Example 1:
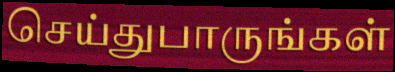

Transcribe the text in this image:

செய்துபாருங்கள்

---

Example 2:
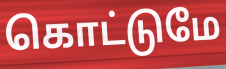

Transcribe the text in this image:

கொட்டுமே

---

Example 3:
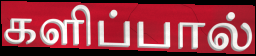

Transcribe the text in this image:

களிப்பால்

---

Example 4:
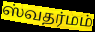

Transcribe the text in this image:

ஸ்வதர்மம்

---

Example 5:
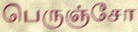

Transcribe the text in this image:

பெருஞ்சோ